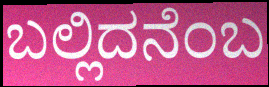
ಬಲ್ಲಿದನೆಂಬ